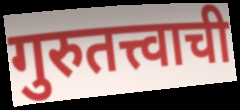
गुरुतत्त्वाची